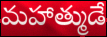
మహాత్ముడే